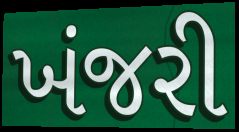
ખંજરી